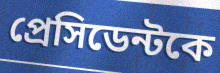
প্রেসিডেন্টকে